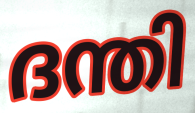
ദന്തി